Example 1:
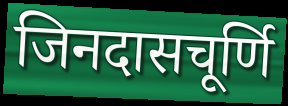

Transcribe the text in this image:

जिनदासचूर्णि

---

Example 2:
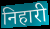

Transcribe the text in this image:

निहारी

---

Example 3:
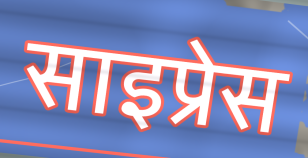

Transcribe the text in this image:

साइप्रेस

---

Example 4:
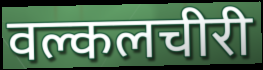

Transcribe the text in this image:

वल्कलचीरी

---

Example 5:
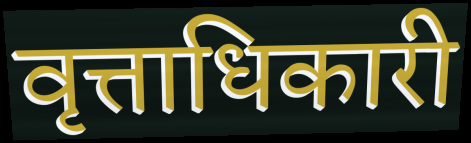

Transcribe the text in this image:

वृत्ताधिकारी